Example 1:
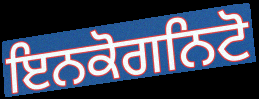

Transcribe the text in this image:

ਇਨਕੋਗਨਿਟੋ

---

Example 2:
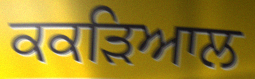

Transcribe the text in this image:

ਕਕੜਿਆਲ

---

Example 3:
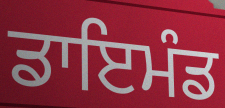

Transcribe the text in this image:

ਡਾਇਮੰਡ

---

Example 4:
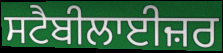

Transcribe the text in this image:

ਸਟੈਬੀਲਾਈਜ਼ਰ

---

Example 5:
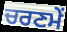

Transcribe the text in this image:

ਚਰਣਮੇਂ